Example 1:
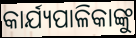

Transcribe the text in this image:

କାର୍ଯ୍ୟପାଳିକାଙ୍କୁ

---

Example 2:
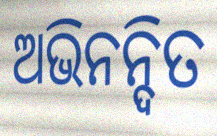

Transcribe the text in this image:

ଅଭିନନ୍ଦିତ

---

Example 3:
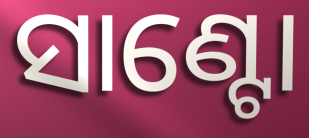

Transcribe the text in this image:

ସାଣ୍ଟୋ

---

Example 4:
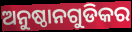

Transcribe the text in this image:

ଅନୁଷ୍ଠାନଗୁଡିକର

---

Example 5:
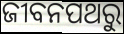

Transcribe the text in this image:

ଜୀବନପଥରୁ